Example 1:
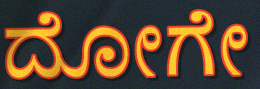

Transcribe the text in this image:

ದೋಗೇ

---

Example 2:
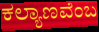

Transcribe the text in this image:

ಕಲ್ಯಾಣವೆಂಬ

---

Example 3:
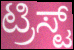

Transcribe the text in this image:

ಟ್ರಿಸ್ಟ್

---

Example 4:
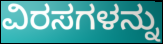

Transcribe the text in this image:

ವಿರಸಗಳನ್ನು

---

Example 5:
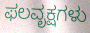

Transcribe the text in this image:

ಫಲವೃಕ್ಷಗಳು